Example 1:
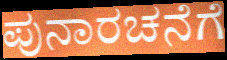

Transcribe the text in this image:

ಪುನಾರಚನೆಗೆ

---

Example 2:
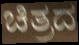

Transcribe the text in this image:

ಚಿತ್ರದ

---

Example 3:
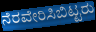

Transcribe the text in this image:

ನೆರವೇರಿಸಿಬಿಟ್ಟರು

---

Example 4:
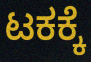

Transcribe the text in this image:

ಟಕಕ್ಕೆ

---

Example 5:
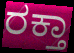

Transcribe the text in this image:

ರಕ್ತಾ